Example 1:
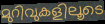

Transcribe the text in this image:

മുറിവുകളിലൂടെ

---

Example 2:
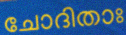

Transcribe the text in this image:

ചോദിതാഃ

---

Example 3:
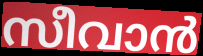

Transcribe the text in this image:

സീവാൻ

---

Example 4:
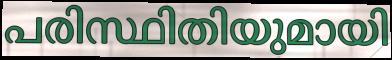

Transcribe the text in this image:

പരിസ്ഥിതിയുമായി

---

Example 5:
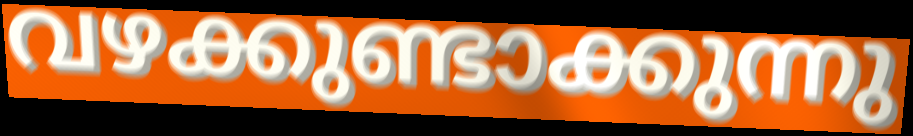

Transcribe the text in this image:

വഴക്കുണ്ടാക്കുന്നു